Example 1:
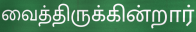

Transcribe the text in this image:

வைத்திருக்கின்றார்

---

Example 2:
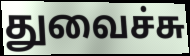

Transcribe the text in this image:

துவைச்சு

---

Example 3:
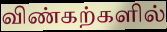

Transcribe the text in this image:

விண்கற்களில்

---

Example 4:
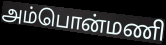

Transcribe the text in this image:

அம்பொன்மணி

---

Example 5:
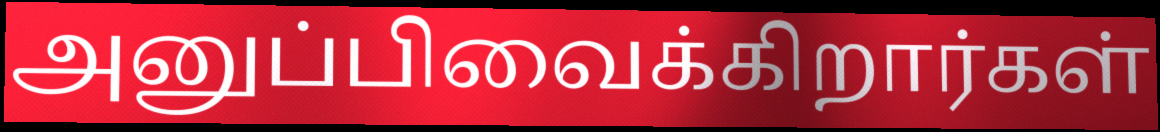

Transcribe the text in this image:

அனுப்பிவைக்கிறார்கள்